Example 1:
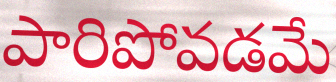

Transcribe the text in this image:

పారిపోవడమే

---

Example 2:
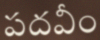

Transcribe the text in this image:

పదవీం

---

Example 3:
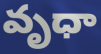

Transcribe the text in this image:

వృధా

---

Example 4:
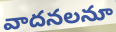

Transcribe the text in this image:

వాదనలనూ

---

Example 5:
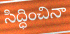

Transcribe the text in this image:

సిద్ధించినా